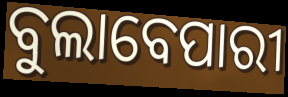
ବୁଲାବେପାରୀ